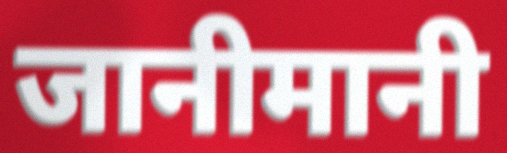
जानीमानी